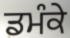
ਡਮੰਕੇ